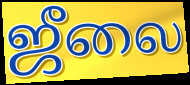
ஜீலை